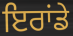
ਇਰਾਂਡੇ